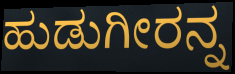
ಹುಡುಗೀರನ್ನ